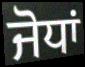
ਜੋਧਾਂ